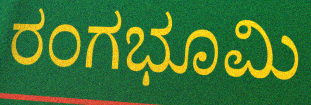
ರಂಗಭೂಮಿ